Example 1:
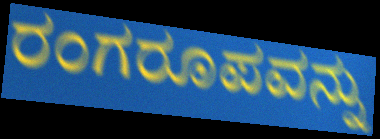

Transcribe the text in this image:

ರಂಗರೂಪವನ್ನು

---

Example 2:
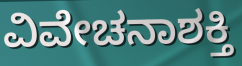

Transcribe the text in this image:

ವಿವೇಚನಾಶಕ್ತಿ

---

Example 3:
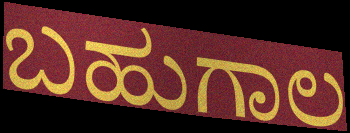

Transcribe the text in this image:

ಬಹುಗಾಲ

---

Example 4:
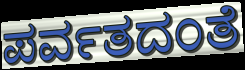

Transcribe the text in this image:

ಪರ್ವತದಂತೆ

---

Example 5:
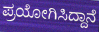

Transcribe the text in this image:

ಪ್ರಯೋಗಿಸಿದ್ದಾನೆ